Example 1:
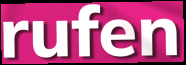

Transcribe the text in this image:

rufen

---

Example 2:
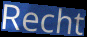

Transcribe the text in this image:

Recht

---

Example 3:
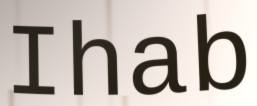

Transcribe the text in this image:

Ihab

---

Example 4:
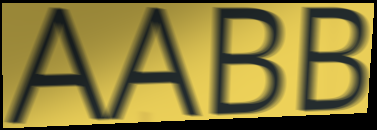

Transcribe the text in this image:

AABB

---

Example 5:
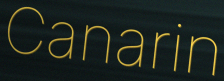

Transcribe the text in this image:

Canarin